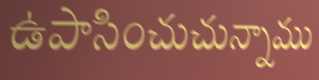
ఉపాసించుచున్నాము